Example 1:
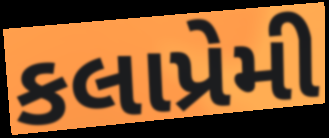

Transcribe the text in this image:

કલાપ્રેમી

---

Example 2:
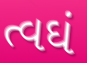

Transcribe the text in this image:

ત્વઘં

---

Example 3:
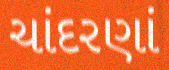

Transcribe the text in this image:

ચાંદરણાં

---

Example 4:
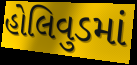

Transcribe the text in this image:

હોલિવુડમાં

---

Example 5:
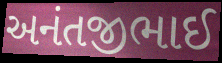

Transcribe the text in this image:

અનંતજીભાઈ